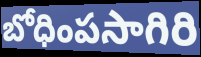
బోధింపసాగిరి